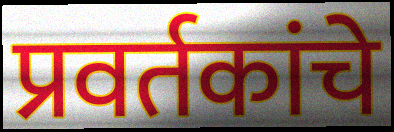
प्रवर्तकांचे